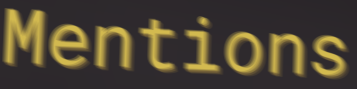
Mentions